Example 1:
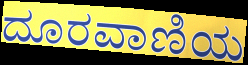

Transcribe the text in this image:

ದೂರವಾಣಿಯ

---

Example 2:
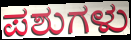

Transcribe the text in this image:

ಪಶುಗಳು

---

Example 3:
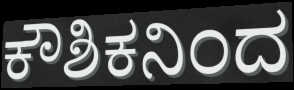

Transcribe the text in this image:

ಕೌಶಿಕನಿಂದ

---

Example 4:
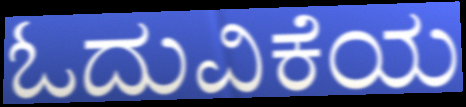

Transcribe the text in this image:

ಓದುವಿಕೆಯ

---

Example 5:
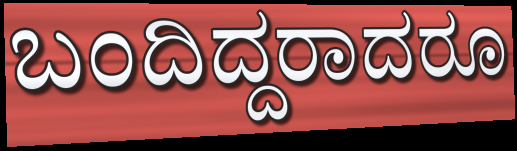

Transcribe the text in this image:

ಬಂದಿದ್ದರಾದರೂ